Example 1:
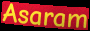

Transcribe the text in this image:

Asaram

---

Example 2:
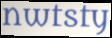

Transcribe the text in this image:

nwtsty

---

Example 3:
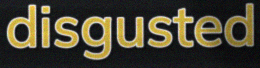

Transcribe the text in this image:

disgusted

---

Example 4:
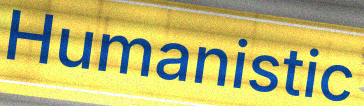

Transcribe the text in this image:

Humanistic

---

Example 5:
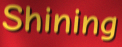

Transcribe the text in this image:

Shining